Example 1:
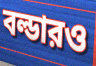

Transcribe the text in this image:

বল্ডারও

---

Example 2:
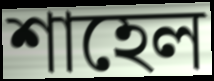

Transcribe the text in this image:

শাহেল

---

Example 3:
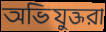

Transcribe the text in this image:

অভিযুক্তরা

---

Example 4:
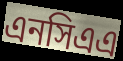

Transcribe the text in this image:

এনসিএএ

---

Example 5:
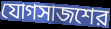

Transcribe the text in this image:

যোগসাজশের